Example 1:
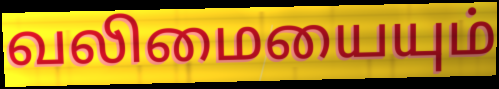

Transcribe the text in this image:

வலிமையையும்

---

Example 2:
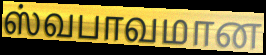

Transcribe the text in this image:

ஸ்வபாவமான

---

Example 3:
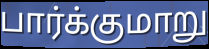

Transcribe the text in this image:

பார்க்குமாறு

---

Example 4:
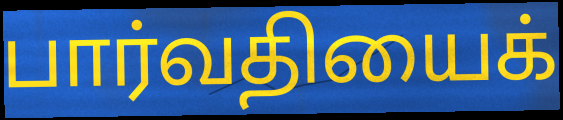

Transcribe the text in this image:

பார்வதியைக்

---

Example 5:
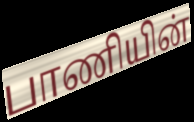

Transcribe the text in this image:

பாணியின்